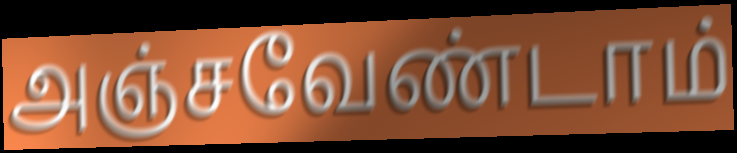
அஞ்சவேண்டாம்